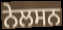
ਨੇਲਸਨ